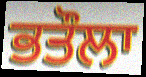
ਭਤੌਲਾ